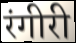
रंगीरी